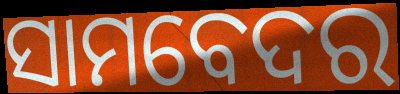
ସାମବେଦର